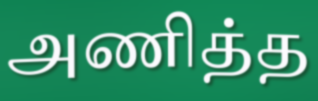
அணித்த